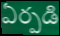
ఏర్పడి